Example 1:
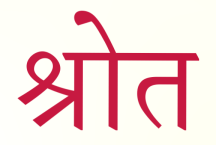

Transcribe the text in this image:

श्रोत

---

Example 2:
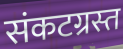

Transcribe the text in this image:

संकटग्रस्‍त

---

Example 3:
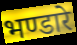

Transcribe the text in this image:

भण्डारे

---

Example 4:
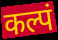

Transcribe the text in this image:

कल्पं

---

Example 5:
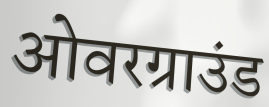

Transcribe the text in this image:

ओवरग्राउंड